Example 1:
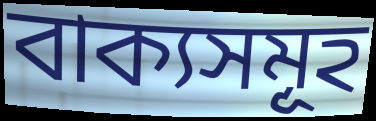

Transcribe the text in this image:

বাক্যসমূহ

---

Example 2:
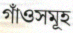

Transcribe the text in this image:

গাঁওসমূহ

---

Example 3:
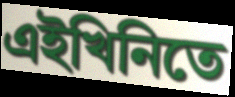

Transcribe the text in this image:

এইখিনিতে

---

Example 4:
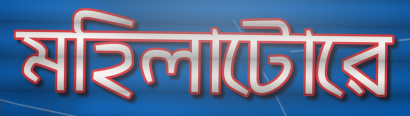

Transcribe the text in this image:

মহিলাটোৱে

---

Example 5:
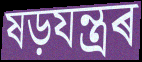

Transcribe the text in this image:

ষড়যন্ত্ৰৰ